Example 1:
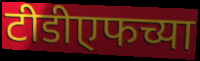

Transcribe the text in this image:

टीडीएफच्या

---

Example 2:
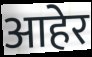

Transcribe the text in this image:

आहेर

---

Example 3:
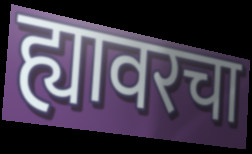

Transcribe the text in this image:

ह्यावरचा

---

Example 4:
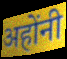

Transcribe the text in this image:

अहोंनी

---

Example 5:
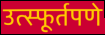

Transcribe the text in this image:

उत्स्फूर्तपणे